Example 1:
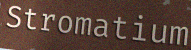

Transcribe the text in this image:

Stromatium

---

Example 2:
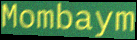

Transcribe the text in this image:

Mombaym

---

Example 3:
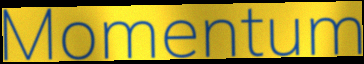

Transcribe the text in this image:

Momentum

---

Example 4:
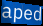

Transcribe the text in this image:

aped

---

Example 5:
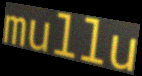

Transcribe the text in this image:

mullu